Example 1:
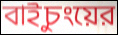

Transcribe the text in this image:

বাইচুংয়ের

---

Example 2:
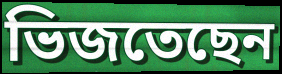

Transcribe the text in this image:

ভিজতেছেন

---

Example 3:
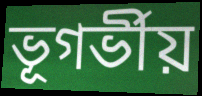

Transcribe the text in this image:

ভূগর্ভীয়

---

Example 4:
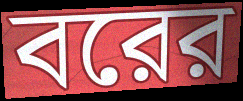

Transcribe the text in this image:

বরের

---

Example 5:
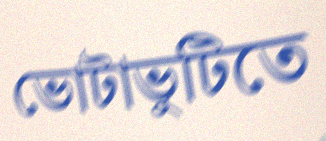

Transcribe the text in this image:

ভোটাভুটিতে